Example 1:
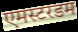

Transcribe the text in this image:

एमस्टरडम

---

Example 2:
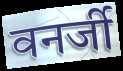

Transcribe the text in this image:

वनर्जी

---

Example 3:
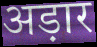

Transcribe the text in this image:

अड़ार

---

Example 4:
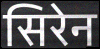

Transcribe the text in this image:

सिरेन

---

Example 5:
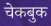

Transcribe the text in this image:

चेकबुक